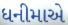
ધનીમાએ